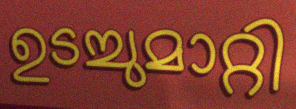
ഉടച്ചുമാറ്റി